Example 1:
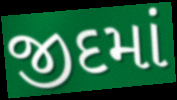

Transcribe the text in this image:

જીદમાં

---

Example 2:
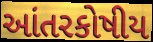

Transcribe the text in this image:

આંતરકોષીય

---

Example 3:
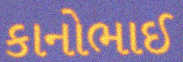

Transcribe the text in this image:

કાનોભાઈ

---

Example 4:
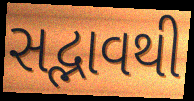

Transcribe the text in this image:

સદ્ભાવથી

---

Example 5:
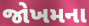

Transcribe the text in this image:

જોખમના